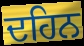
ਦਹਿਨ